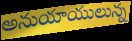
అనుయాయులున్న